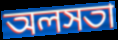
অলসতা